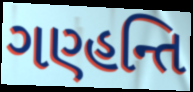
ગણ્હન્તિ